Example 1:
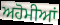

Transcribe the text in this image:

ਅਹੋਮੀਆਂ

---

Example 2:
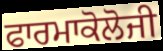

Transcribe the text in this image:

ਫਾਰਮਾਕੋਲੋਜੀ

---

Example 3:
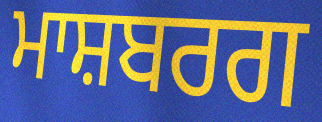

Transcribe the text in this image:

ਮਾਸ਼ਬਰਗ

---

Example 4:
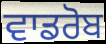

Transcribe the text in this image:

ਵਾਡਰੋਬ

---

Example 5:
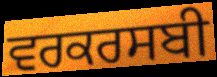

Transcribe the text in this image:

ਵਰਕਰਸਬੀ